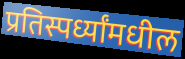
प्रतिस्पर्ध्यांमधील